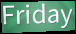
Friday